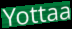
Yottaa